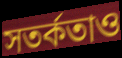
সতর্কতাও